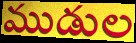
ముడుల